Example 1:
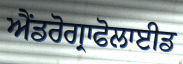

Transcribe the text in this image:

ਐਂਡਰੋਗ੍ਰਾਫੋਲਾਈਡ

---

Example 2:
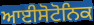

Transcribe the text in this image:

ਆਈਸੋਟੋਨਿਕ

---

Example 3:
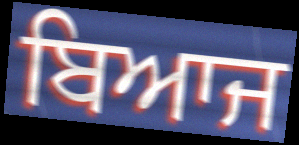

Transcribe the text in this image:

ਬਿਆਜ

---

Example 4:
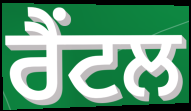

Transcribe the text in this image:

ਰੈਂਟਲ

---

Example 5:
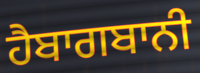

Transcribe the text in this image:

ਹੈਬਾਗਬਾਨੀ